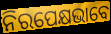
ନିରପେକ୍ଷଭାବେ